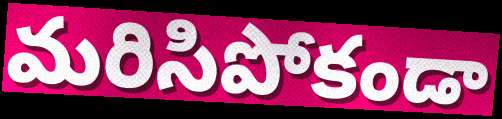
మరిసిపోకండా